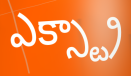
ఎక్స్ట్రా